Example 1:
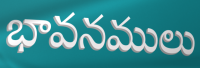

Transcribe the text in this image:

భావనములు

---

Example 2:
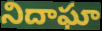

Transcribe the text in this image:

నిదాఘా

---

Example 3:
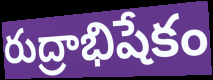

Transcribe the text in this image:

రుద్రాభిషేకం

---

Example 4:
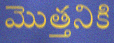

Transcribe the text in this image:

మొత్తనికి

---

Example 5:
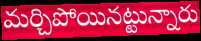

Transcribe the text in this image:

మర్చిపోయినట్టున్నారు